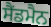
ਸੈਂਡਮੈਨ